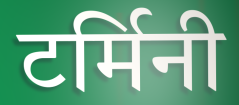
टर्मिनी